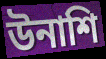
উনাশি